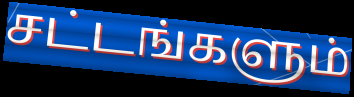
சட்டங்களும்